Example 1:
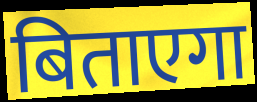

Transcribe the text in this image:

बिताएगा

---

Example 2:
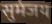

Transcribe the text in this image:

सुमंजय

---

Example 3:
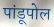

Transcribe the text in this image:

पांडूपोल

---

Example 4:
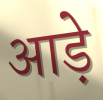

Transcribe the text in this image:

आड़े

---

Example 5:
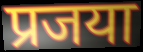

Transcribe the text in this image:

प्रजया